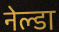
नेल्डा